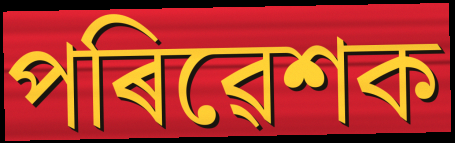
পৰিৱেশক